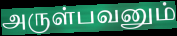
அருள்பவனும்